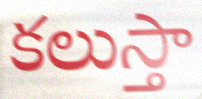
కలుస్తా